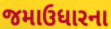
જમાઉધારના